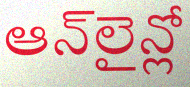
ఆన్‌లైన్లో